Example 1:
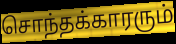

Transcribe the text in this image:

சொந்தக்காரரும்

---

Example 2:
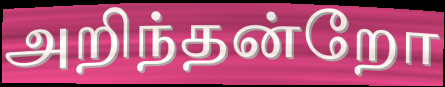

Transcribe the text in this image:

அறிந்தன்றோ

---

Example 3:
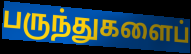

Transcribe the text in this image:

பருந்துகளைப்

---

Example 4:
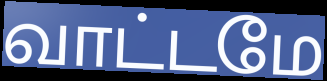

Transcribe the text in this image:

வாட்டமே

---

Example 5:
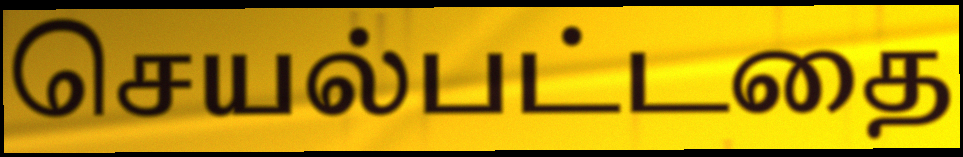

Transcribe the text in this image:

செயல்பட்டதை